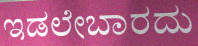
ಇಡಲೇಬಾರದು